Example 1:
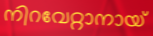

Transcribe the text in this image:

നിറവേറ്റാനായ്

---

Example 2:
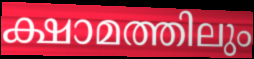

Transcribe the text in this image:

ക്ഷാമത്തിലും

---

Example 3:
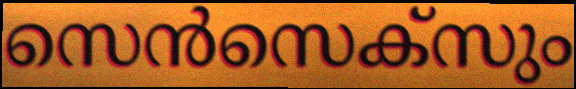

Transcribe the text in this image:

സെൻസെക്സും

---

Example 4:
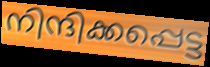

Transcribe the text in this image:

നിന്ദിക്കപ്പെട്ട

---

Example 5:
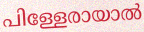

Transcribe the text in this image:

പിള്ളേരായാൽ